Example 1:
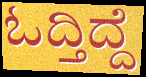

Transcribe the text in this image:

ಓದ್ತಿದ್ದೆ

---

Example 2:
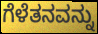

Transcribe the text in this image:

ಗೆಳೆತನವನ್ನು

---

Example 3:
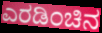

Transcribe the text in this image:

ಎರಡಿಂಚಿನ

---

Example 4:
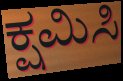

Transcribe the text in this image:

ಕ್ಷಮಿಸಿ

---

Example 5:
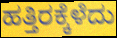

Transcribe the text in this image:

ಹತ್ತಿರಕ್ಕೆಳೆದು